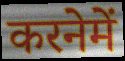
करनेमें